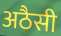
अठैसी